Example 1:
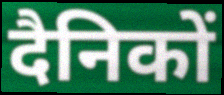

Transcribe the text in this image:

दैनिकों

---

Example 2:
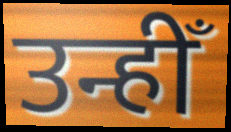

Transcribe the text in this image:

उन्हीँ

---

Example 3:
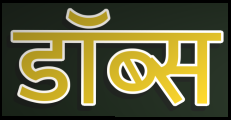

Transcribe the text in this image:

डॉब्स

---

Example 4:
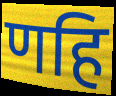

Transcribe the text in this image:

णहि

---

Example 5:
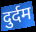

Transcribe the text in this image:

दुर्दम